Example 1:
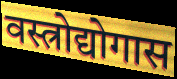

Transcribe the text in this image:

वस्त्रोद्योगास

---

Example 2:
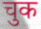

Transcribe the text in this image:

चुक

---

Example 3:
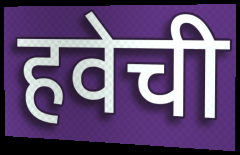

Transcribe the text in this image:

हवेची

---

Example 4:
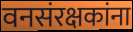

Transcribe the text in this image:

वनसंरक्षकांना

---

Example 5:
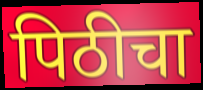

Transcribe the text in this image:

पिठीचा